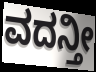
ವದನ್ತೀ